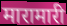
मारामारी